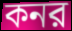
কনর